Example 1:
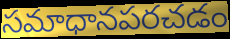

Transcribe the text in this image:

సమాధానపరచడం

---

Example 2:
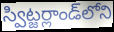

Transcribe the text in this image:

స్విట్జర్లాండ్‌లోని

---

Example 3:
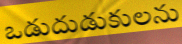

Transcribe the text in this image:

ఒడుదుడుకులను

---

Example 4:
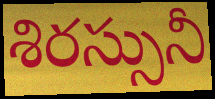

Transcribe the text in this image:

శిరస్సునీ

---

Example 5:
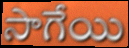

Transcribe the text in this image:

సాగేయి